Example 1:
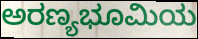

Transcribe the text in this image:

ಅರಣ್ಯಭೂಮಿಯ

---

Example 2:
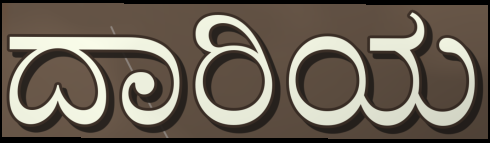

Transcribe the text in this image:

ದಾರಿಯ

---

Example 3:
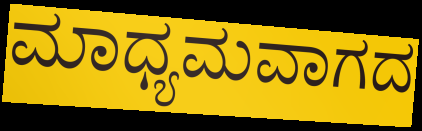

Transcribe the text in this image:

ಮಾಧ್ಯಮವಾಗದ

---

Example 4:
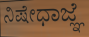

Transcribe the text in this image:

ನಿಷೇಧಾಜ್ಞೆ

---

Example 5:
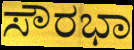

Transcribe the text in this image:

ಸೌರಭಾ